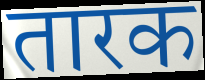
तारक